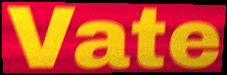
Vate